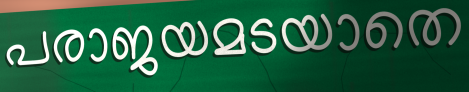
പരാജയമടയാതെ